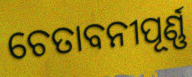
ଚେତାବନୀପୂର୍ଣ୍ଣ